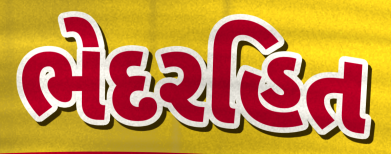
ભેદરહિત